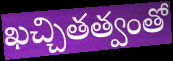
ఖచ్చితత్వంతో